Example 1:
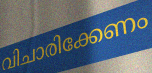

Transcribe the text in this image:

വിചാരിക്കേണം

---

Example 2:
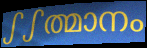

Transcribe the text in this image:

ഽഽത്മാനം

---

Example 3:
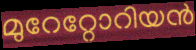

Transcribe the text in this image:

മുറേറ്റോറിയൻ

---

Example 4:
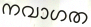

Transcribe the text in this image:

നവാഗത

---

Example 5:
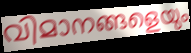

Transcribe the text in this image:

വിമാനങ്ങളെയും